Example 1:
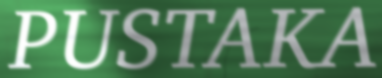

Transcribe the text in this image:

PUSTAKA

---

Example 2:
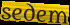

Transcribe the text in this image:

sedem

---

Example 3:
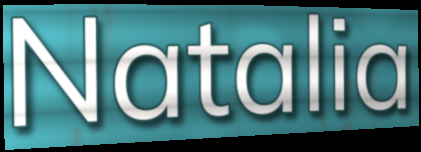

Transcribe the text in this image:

Natalia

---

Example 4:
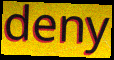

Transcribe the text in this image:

deny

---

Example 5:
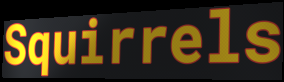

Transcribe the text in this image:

Squirrels